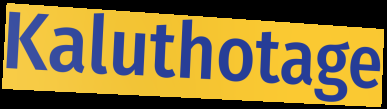
Kaluthotage